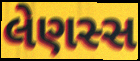
લેણસ્સ